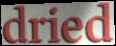
dried